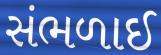
સંભળાઈ